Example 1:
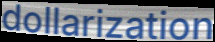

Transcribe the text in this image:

dollarization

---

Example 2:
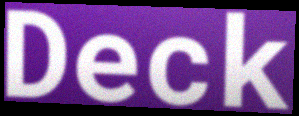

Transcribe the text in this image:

Deck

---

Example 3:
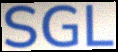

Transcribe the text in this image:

SGL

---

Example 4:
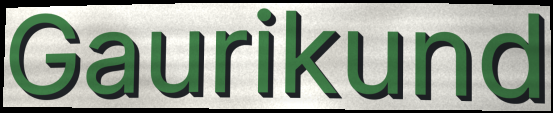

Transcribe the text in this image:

Gaurikund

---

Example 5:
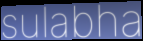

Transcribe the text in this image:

sulabha